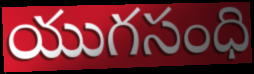
యుగసంధి